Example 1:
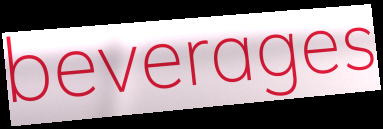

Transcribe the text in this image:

beverages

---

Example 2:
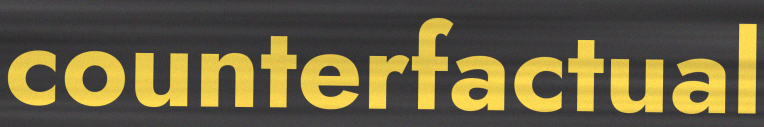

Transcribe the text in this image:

counterfactual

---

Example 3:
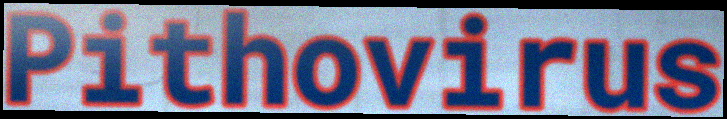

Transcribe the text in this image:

Pithovirus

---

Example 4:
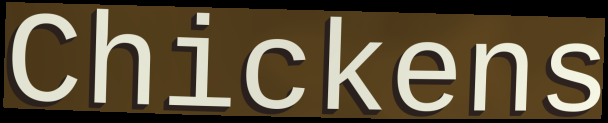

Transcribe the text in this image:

Chickens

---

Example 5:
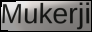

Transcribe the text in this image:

Mukerji